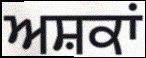
ਅਸ਼ਕਾਂ